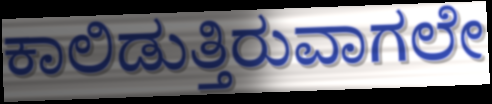
ಕಾಲಿಡುತ್ತಿರುವಾಗಲೇ